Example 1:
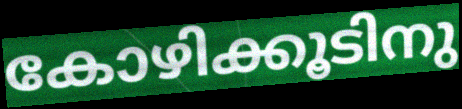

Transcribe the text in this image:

കോഴിക്കൂടിനു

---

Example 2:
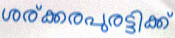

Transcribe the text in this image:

ശര്ക്കരപുരട്ടിക്ക്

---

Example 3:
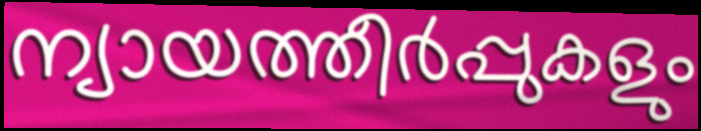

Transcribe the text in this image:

ന്യായത്തീർപ്പുകളും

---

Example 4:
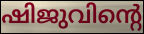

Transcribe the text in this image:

ഷിജുവിന്റെ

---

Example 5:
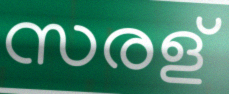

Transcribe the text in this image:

സരള്